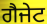
ਗੈਜੇਟ